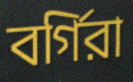
বর্গিরা